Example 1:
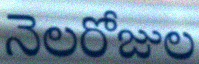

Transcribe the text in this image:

నెలరోజుల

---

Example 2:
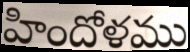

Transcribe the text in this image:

హిందోళము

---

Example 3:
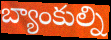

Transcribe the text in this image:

బ్యాంకుల్ని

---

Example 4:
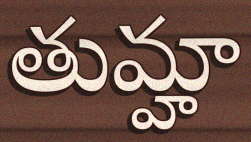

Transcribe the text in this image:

తుమ్హా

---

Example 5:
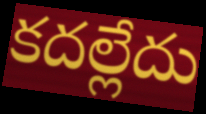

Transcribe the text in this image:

కదల్లేదు